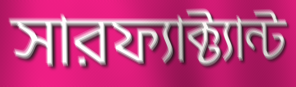
সারফ্যাক্ট্যান্ট